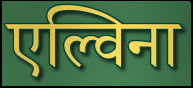
एल्विना